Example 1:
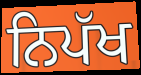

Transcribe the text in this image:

ਨਿਪੱਖ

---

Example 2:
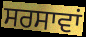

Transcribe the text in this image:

ਸਰਸਾਵਾਂ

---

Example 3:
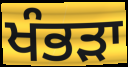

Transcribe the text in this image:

ਖੰਭੜਾ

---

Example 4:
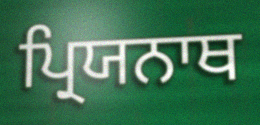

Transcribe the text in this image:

ਪ੍ਰਿਯਨਾਥ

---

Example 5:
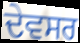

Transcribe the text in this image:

ਦੇਵਸਰ